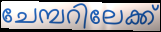
ചേമ്പറിലേക്ക്